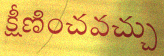
క్షీణించవచ్చు